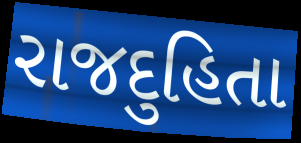
રાજદુહિતા